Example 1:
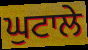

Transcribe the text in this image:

ਘੁਟਾਲੇ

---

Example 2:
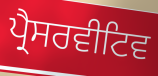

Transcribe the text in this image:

ਪ੍ਰੈਸਰਵੀਟਿਵ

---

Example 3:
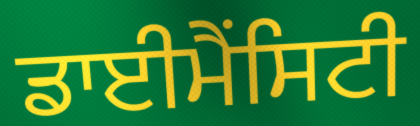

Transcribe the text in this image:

ਡਾਈਮੈਂਸਿਟੀ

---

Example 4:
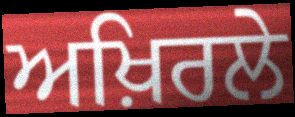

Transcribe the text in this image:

ਅਖ਼ਿਰਲੇ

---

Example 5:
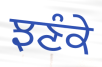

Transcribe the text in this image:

ਝਣੰਕੇ